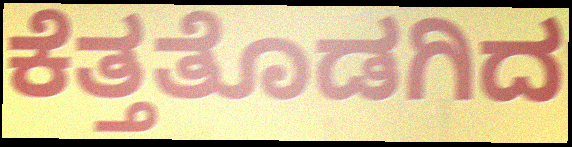
ಕೆತ್ತತೊಡಗಿದ